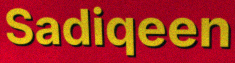
Sadiqeen